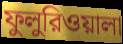
ফুলুরিওয়ালা